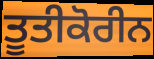
ਤੂਤੀਕੋਰੀਨ